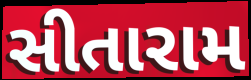
સીતારામ